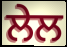
ਲੇਲ